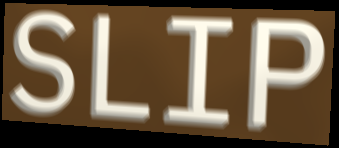
SLIP